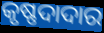
କୃଷ୍ଣଦାଦାର